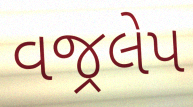
વજ્રલેપ